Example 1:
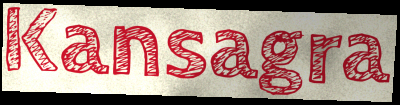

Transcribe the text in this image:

Kansagra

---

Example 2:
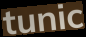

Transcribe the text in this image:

tunic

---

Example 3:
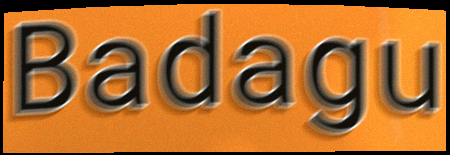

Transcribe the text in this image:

Badagu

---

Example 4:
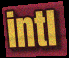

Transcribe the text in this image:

intl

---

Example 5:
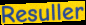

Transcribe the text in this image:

Resuller